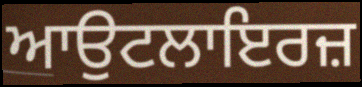
ਆਉਟਲਾਇਰਜ਼